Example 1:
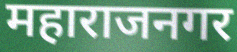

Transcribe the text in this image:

महाराजनगर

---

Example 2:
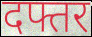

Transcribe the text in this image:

दफ्तर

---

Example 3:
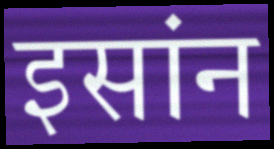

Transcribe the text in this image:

इसांन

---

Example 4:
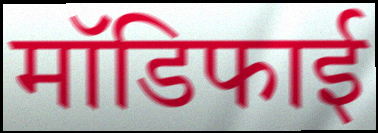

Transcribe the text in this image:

मॉडिफाई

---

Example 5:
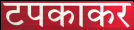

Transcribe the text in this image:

टपकाकर